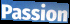
Passion